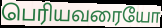
பெரியவரையோ